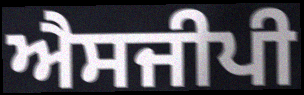
ਐਸਜੀਪੀ